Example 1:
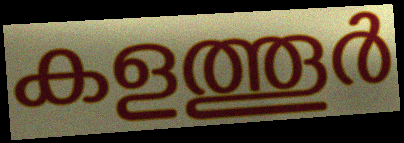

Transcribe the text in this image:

കളത്തൂർ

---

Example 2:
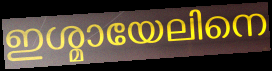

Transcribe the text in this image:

ഇശ്മായേലിനെ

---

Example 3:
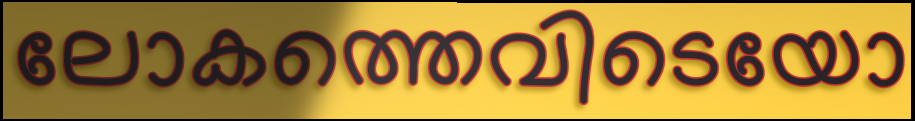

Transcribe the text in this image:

ലോകത്തെവിടെയോ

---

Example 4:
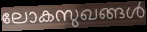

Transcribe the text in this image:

ലോകസുഖങ്ങൾ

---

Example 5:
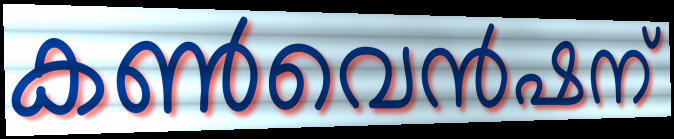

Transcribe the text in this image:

കൺവെൻഷന്